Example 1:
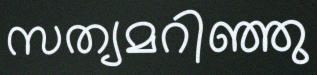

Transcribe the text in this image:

സത്യമറിഞ്ഞു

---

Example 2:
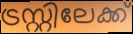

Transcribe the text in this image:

ട്രസ്റ്റിലേക്ക്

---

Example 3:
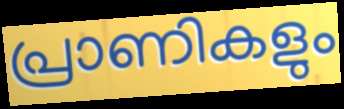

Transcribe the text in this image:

പ്രാണികളും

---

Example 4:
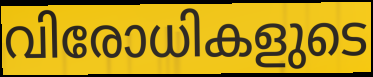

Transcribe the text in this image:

വിരോധികളുടെ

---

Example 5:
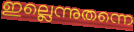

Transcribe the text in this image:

ഇല്ലെന്നുതന്നെ